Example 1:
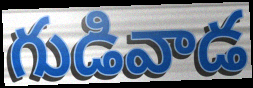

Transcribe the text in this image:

గుడివాడ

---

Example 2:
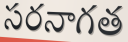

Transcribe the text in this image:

సరనాగత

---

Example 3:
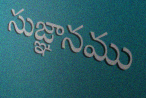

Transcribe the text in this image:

సుజ్ఞానము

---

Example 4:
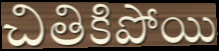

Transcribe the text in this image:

చితికిపోయి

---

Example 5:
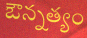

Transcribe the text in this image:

ఔన్నత్యం